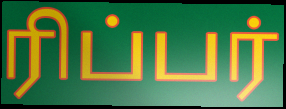
ரிப்பர்